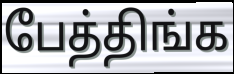
பேத்திங்க